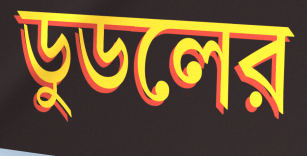
ডুডলের